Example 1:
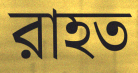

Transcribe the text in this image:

রাহত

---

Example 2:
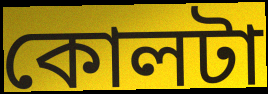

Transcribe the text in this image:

কোলটা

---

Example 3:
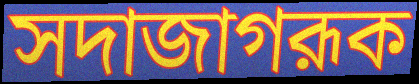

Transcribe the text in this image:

সদাজাগরূক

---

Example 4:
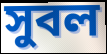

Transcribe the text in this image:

সুবল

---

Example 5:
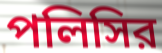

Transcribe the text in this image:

পলিসির